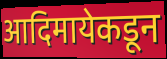
आदिमायेकडून